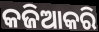
କଜିଆକରି